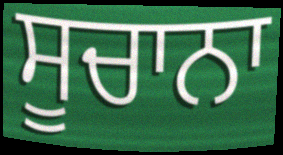
ਸੂਚਾਨਾ